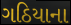
ગઠિયાના